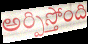
అర్పిస్తోంది